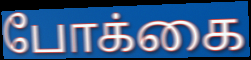
போக்கை